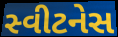
સ્વીટનેસ